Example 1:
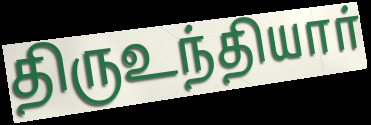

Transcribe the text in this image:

திருஉந்தியார்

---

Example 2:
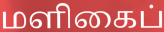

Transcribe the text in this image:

மளிகைப்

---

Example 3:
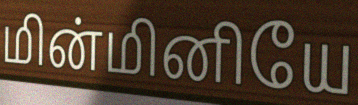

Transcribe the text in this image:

மின்மினியே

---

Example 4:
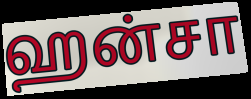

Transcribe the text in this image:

ஹன்சா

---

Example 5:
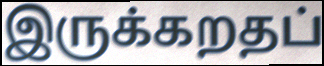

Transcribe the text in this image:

இருக்கறதப்